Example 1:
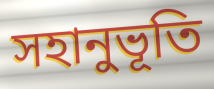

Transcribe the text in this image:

সহানুভূতি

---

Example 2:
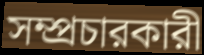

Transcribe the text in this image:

সম্প্রচারকারী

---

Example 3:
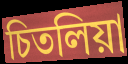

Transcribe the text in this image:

চিতলিয়া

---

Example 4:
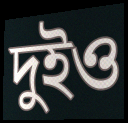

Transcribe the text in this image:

দুইও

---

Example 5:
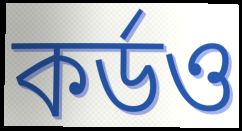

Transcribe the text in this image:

কর্ডও